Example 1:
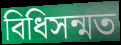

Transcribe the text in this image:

বিধিসন্মত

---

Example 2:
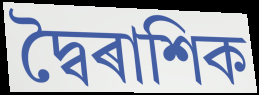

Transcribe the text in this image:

দ্বৈৰাশিক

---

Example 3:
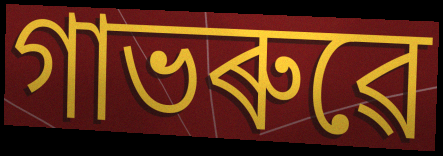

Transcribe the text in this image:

গাভৰুৱে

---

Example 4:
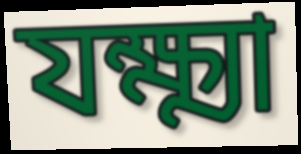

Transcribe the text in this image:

যক্ষ্মা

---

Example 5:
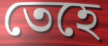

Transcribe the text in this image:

তেহে